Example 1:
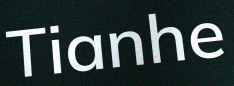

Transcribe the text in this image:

Tianhe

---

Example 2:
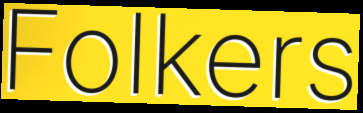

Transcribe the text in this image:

Folkers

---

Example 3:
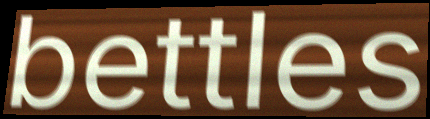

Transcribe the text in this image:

bettles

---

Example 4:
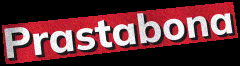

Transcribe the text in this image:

Prastabona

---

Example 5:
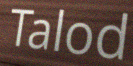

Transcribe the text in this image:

Talod